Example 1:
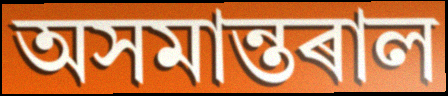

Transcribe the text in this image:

অসমান্তৰাল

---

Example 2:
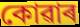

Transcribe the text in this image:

কোৱাৰ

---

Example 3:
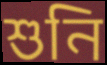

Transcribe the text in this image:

শুনি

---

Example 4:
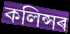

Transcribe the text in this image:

কলিন্সৰ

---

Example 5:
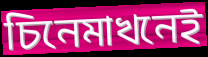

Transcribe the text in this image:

চিনেমাখনেই